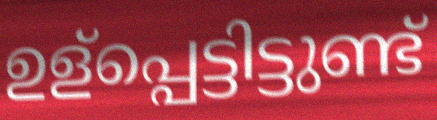
ഉള്പ്പെട്ടിട്ടുണ്ട്